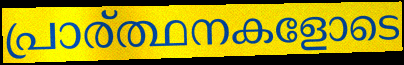
പ്രാര്ത്ഥനകളോടെ